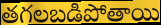
తగలబడిపోతాయి